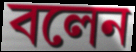
বলেন